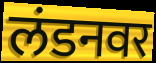
लंडनवर